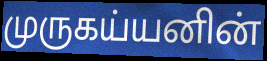
முருகய்யனின்